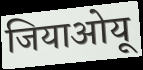
जियाओयू